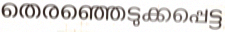
തെരഞ്ഞെടുക്കപ്പെട്ട